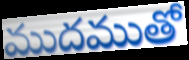
ముదముతో